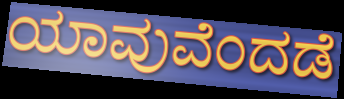
ಯಾವುವೆಂದಡೆ